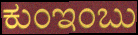
ಕುಂಇಂಬು